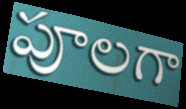
పూలగా